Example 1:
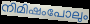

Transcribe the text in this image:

നിമിഷംപോലും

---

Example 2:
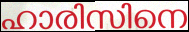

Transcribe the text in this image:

ഹാരിസിനെ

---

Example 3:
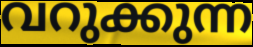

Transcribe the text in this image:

വറുക്കുന്ന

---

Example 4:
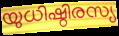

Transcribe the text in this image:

യുധിഷ്ഠിരസ്യ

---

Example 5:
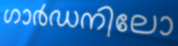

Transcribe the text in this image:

ഗാർഡനിലോ